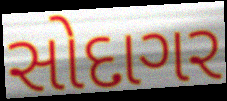
સોદાગર